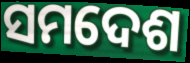
ସମଦେଶ